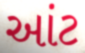
આંટ